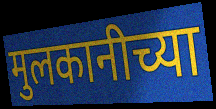
मुलकानीच्या